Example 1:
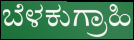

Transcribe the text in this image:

ಬೆಳಕುಗ್ರಾಹಿ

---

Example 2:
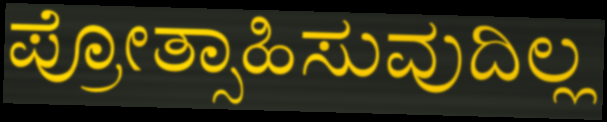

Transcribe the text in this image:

ಪ್ರೋತ್ಸಾಹಿಸುವುದಿಲ್ಲ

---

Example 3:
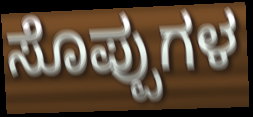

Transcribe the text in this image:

ಸೊಪ್ಪುಗಳ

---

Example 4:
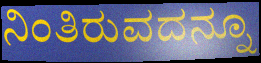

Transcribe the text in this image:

ನಿಂತಿರುವದನ್ನೂ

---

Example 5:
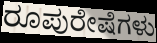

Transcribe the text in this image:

ರೂಪುರೇಷೆಗಳು